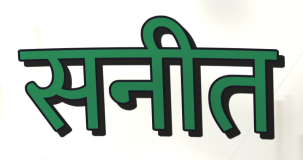
सनीत